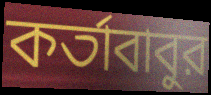
কর্তাবাবুর